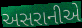
અસરાનીએ